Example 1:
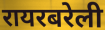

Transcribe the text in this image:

रायरबरेली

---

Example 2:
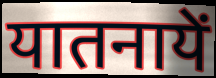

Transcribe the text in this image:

यातनायें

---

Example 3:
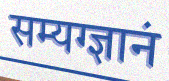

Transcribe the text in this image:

सम्यग्ज्ञानं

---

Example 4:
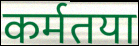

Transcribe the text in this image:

कर्मतया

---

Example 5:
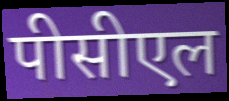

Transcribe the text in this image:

पीसीएल